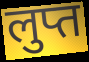
लुप्‍त